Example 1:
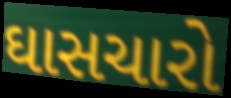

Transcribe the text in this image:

ઘાસચારો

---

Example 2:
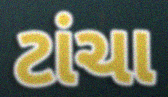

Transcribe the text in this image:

ટાંચા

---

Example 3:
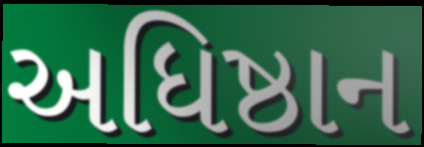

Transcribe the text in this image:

અધિષ્ઠાન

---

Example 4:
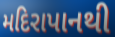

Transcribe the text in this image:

મદિરાપાનથી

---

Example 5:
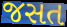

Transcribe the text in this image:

જસત